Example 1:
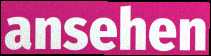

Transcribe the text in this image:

ansehen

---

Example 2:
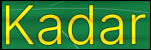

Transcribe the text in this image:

Kadar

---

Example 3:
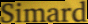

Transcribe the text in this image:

Simard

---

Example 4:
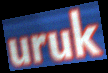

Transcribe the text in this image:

uruk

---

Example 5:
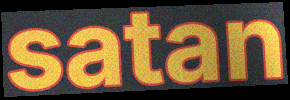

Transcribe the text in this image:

satan